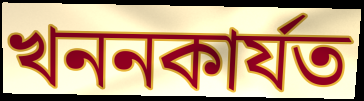
খননকাৰ্যত